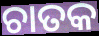
ଚାତକ